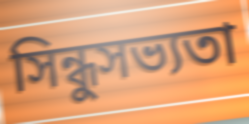
সিন্ধুসভ্যতা